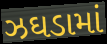
ઝઘડામાં